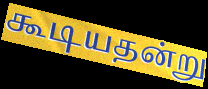
கூடியதன்று